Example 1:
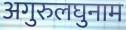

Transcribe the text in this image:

अगुरुलघुनाम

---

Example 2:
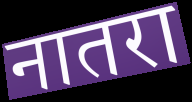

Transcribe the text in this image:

नातरा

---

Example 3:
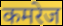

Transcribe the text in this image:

कमरेज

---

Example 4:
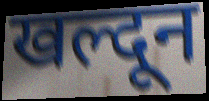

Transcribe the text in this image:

खल्दून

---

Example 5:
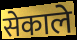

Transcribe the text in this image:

सेकाले